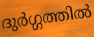
ദുർഗ്ഗത്തിൽ